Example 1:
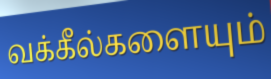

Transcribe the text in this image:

வக்கீல்களையும்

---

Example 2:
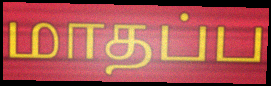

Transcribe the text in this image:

மாதப்ப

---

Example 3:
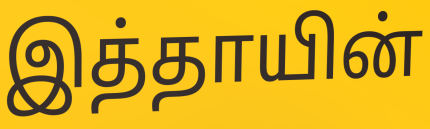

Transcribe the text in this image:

இத்தாயின்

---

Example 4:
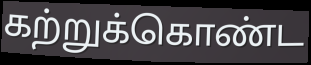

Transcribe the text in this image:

கற்றுக்கொண்ட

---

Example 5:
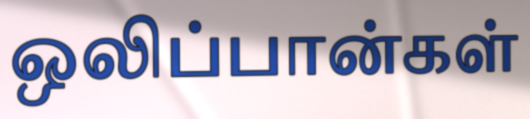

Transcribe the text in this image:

ஒலிப்பான்கள்